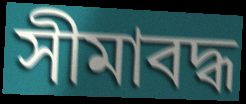
সীমাবদ্ধ